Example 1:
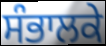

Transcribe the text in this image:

ਸੰਭਾਲਕੇ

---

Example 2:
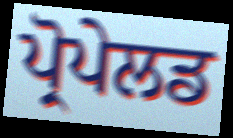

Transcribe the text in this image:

ਪ੍ਰੋਪੇਲਡ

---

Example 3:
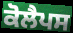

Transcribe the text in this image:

ਕੋਲੈਪਸ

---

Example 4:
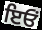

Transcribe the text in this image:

ਇਓਂ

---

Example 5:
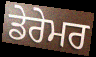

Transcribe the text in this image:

ਡੇਰੇਮਰ